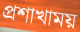
প্রশাখাময়